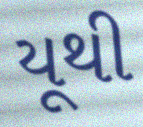
યૂથી